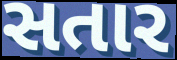
સતાર